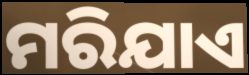
ମରିଯାଏ